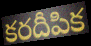
కరదీపిక